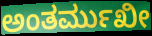
ಅಂತರ್ಮುಖೀ